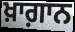
ਖ਼ਾਗ਼ਾਨ